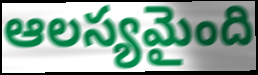
ఆలస్యమైంది